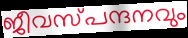
ജീവസ്പന്ദനവും